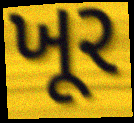
ખૂર